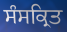
ਸੰਸਕ੍ਰਿਤ